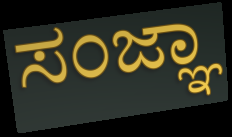
ಸಂಜ್ಞಾ